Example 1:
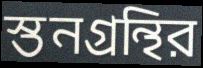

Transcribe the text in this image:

স্তনগ্রন্থির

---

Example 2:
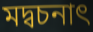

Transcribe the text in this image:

মদ্বচনাৎ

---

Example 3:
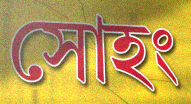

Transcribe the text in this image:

সোহং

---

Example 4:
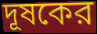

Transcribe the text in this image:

দূষকের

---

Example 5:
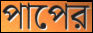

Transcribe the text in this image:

পাপের